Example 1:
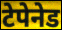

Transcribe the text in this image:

टेपेनेड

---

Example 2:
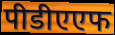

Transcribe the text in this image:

पीडीएएफ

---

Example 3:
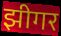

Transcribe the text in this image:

झीगर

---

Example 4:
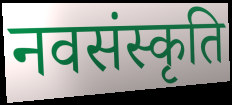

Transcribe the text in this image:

नवसंस्कृति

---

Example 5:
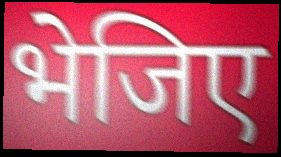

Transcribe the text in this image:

भेजिए